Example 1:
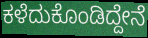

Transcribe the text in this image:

ಕಳೆದುಕೊಂಡಿದ್ದೇನೆ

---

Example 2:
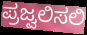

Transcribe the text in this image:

ಪ್ರಜ್ವಲಿಸಲಿ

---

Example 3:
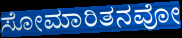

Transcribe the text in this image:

ಸೋಮಾರಿತನವೋ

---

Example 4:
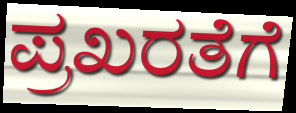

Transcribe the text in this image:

ಪ್ರಖರತೆಗೆ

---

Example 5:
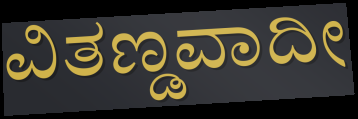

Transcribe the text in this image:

ವಿತಣ್ಡವಾದೀ